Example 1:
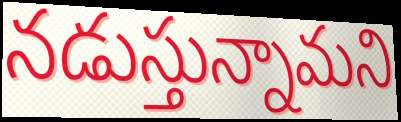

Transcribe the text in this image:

నడుస్తున్నామని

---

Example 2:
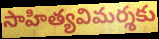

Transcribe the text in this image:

సాహిత్యవిమర్శకు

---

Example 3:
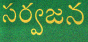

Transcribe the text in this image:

సర్వజన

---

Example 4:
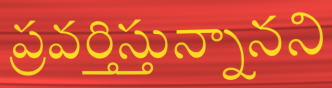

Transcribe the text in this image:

ప్రవర్తిస్తున్నానని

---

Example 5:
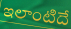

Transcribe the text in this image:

ఇలాంటిదే